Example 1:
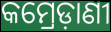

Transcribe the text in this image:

କମ୍ରେଡ଼ାଣୀ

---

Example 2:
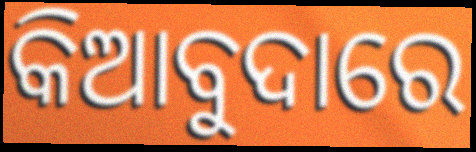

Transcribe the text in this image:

କିଆବୁଦାରେ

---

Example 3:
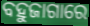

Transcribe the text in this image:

ବହୁଜାଗାରେ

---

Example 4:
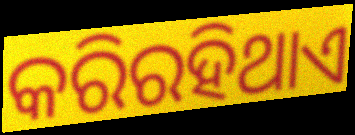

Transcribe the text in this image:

କରିରହିଥାଏ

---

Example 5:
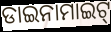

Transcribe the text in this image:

ଡାଇନାମାଇଟ୍